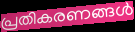
പ്രതികരണങ്ങൾ